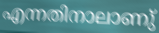
എന്നതിനാലാണു്